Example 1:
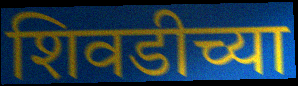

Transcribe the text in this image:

शिवडीच्या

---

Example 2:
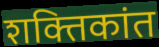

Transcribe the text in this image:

शक्तिकांत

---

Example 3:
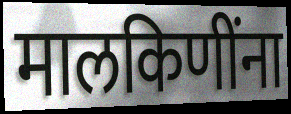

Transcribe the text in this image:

मालकिणींना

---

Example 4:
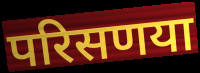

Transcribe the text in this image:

परिसणया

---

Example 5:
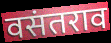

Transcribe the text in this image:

वसंतराव